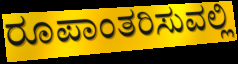
ರೂಪಾಂತರಿಸುವಲ್ಲಿ